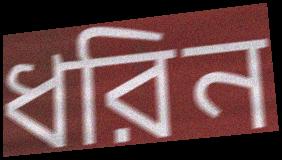
ধরিন